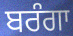
ਬਰੰਗਾ